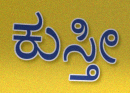
ಕುಸ್ತೀ